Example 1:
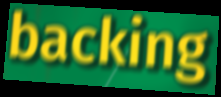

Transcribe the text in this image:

backing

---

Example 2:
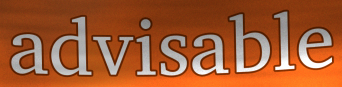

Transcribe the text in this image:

advisable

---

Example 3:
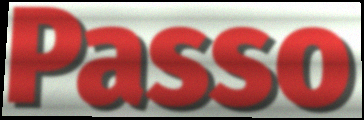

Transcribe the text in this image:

Passo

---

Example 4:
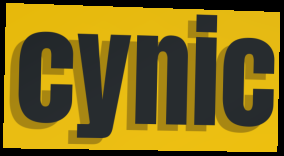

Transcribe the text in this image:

cynic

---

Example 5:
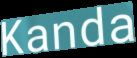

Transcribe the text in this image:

Kanda